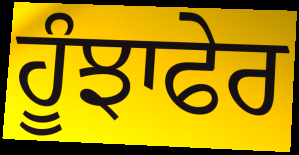
ਹੂੰਝਾਫੇਰ